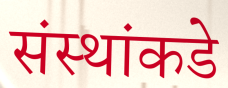
संस्थांकडे